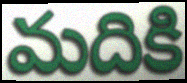
మదికి